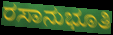
ರಸಾನುಭೂತಿ